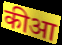
कीआ